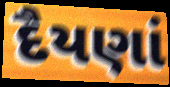
દૈયણાં